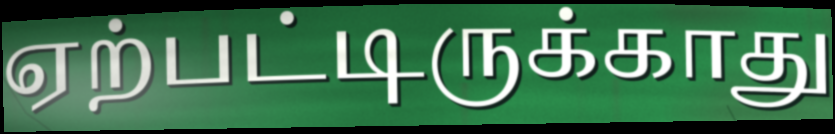
ஏற்பட்டிருக்காது